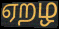
ஏறழ